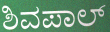
ಶಿವಪಾಲ್